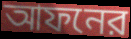
আফনের